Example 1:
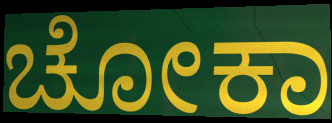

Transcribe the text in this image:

ಚೋಕಾ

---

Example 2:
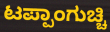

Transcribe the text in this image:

ಟಪ್ಪಾಂಗುಚ್ಚಿ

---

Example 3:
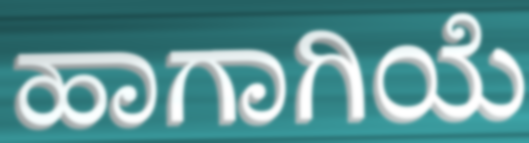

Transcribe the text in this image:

ಹಾಗಾಗಿಯೆ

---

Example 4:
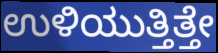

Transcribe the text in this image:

ಉಳಿಯುತ್ತಿತ್ತೇ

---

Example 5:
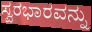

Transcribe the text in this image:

ಸ್ವರಭಾರವನ್ನು